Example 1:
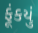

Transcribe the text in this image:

ફૂંકયું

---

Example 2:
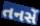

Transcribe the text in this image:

તનસેં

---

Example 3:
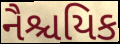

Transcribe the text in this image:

નૈશ્ચયિક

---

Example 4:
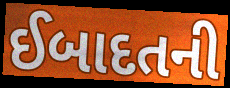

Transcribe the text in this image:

ઈબાદતની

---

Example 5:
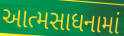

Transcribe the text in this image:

આત્મસાધનામાં